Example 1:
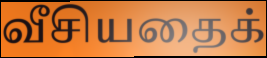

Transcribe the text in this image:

வீசியதைக்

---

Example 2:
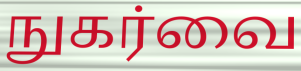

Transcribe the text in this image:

நுகர்வை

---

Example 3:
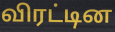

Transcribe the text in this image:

விரட்டின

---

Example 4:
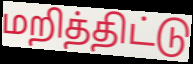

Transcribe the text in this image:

மறித்திட்டு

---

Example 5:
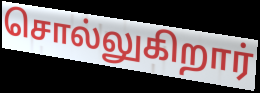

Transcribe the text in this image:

சொல்லுகிறார்